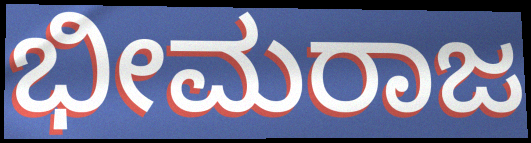
ಭೀಮರಾಜ